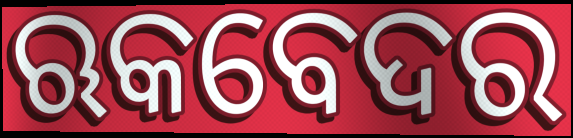
ଋକବେଦର